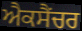
ਐਕਸੈਂਚਰ